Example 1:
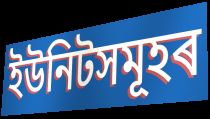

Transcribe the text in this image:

ইউনিটসমূহৰ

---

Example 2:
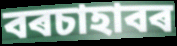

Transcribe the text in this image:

বৰচাহাবৰ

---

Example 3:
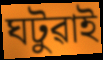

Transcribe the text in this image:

ঘটুৱাই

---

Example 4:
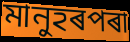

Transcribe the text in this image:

মানুহৰপৰা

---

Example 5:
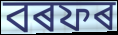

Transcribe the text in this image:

বৰফৰ